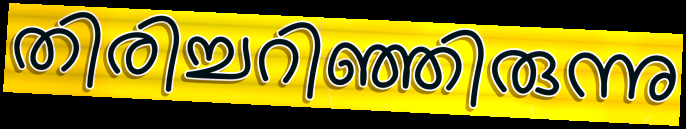
തിരിച്ചറിഞ്ഞിരുന്നു